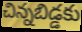
చిన్నబిడ్డకు